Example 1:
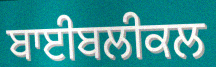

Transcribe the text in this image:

ਬਾਈਬਲੀਕਲ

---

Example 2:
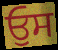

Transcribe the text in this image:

ਓੁਸ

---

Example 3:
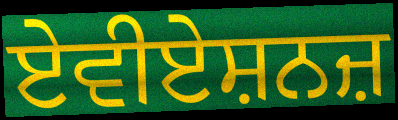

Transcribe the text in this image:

ਏਵੀਏਸ਼ਨਜ਼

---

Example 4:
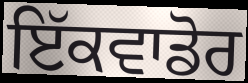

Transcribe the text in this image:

ਇੱਕਵਾਡੋਰ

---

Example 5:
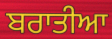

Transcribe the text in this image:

ਬਰਾਤੀਆ